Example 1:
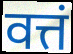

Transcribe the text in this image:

वत्तं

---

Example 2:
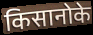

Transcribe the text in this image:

किसानोके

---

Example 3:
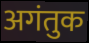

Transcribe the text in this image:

अगंतुक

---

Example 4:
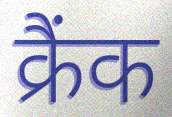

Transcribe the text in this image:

क्रैंक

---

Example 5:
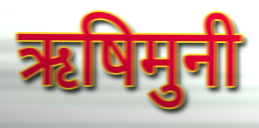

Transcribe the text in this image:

ऋषिमुनी